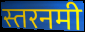
स्तरनमी